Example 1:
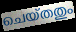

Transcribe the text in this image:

ചെയ്‌തതും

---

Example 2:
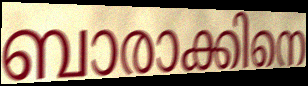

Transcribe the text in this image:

ബാരാക്കിനെ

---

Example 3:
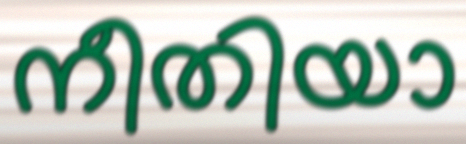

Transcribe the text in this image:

നീതിയാ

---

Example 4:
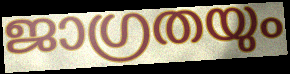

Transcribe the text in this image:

ജാഗ്രതയും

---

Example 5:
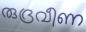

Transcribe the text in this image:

രുദ്രവീണ